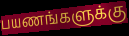
பயணங்களுக்கு